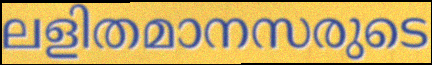
ലളിതമാനസരുടെ